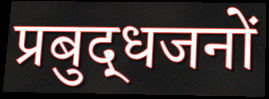
प्रबुद्धजनों